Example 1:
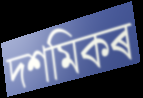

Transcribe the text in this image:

দশমিকৰ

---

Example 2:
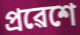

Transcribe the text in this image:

প্ৰৱেশে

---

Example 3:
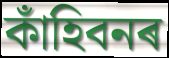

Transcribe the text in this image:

কাঁহিবনৰ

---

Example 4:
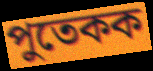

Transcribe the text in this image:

পুতেকক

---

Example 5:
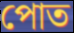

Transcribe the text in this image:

পোত